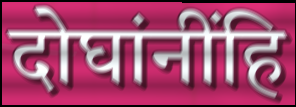
दोघांनींहि